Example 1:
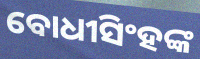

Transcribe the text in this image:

ବୋଧୀସିଂହଙ୍କ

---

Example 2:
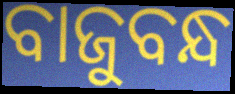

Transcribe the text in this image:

ବାଜୁବନ୍ଧ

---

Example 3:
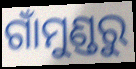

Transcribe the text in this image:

ଗାଁମୁଣ୍ଡରୁ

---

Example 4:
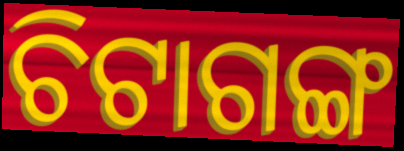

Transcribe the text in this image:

ଚିଟାଗଙ୍ଗ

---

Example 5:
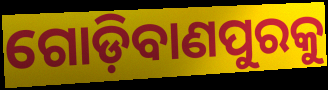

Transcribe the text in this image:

ଗୋଡ଼ିବାଣପୁରକୁ